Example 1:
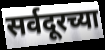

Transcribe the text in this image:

सर्वदूरच्या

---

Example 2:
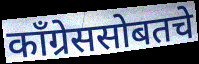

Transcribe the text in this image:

काँग्रेससोबतचे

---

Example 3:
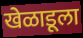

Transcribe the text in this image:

खेळाडूला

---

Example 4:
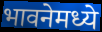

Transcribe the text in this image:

भावनेमध्ये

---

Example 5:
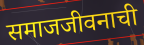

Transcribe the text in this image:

समाजजीवनाची